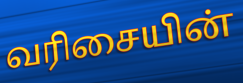
வரிசையின்